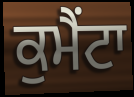
ਕੁਮੈਂਟਾ